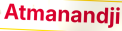
Atmanandji